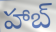
హాబ్